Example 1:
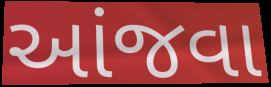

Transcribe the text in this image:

આંજવા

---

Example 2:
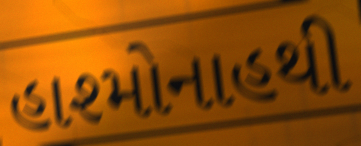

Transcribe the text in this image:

હાશ્મોનાહથી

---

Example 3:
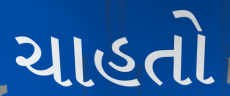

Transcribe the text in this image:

ચાહતો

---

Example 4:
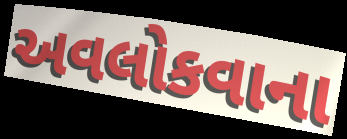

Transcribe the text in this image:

અવલોકવાના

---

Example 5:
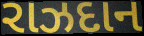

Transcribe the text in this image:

રાઝદાન